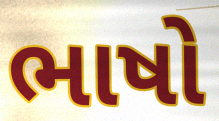
ભાષો